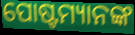
ପୋଷ୍ଟମ୍ୟାନଙ୍କ